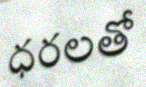
ధరలతో